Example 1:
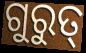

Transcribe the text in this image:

ଗୁରୁତ୍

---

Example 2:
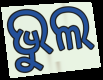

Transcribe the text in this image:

ଭୁଲ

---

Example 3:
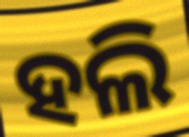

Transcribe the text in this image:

ହଲି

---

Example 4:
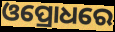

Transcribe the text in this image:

ଓପ୍ରୋଧରେ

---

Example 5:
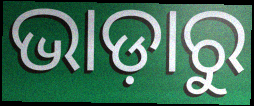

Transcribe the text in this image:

ଭାଡ଼ାରୁ